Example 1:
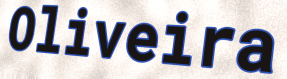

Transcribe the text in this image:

Oliveira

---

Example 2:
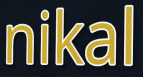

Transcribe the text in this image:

nikal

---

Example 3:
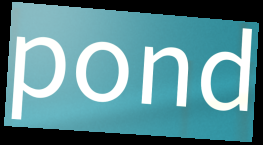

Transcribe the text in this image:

pond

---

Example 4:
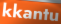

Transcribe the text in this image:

kkantu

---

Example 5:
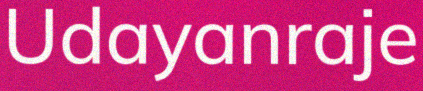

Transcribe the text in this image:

Udayanraje